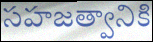
సహజత్వానికి